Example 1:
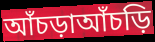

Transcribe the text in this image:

আঁচড়াআঁচড়ি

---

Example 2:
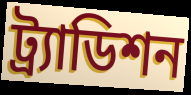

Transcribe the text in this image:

ট্র্যাডিশন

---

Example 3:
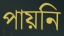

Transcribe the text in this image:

পায়নি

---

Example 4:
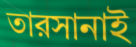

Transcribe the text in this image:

তারসানাই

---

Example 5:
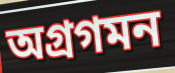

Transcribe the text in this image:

অগ্রগমন